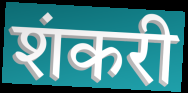
शंकरी